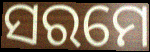
ସରମେ